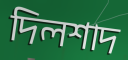
দিলশাদ